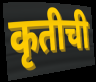
कृतीची